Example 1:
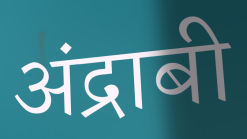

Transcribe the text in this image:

अंद्राबी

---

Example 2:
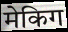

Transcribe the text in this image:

मेकिग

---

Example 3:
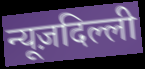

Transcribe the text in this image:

न्यूज़दिल्ली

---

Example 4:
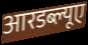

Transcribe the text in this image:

आरडब्ल्यूए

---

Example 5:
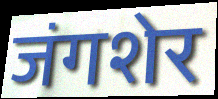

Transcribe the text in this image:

जंगशेर